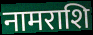
नामराशि